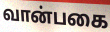
வான்பகை